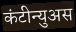
कंटीन्युअस